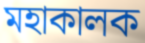
মহাকালক